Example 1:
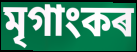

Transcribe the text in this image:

মৃগাংকৰ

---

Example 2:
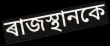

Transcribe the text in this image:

ৰাজস্থানকে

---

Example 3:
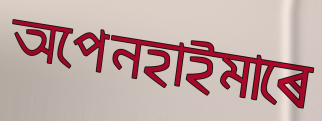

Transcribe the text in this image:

অপেনহাইমাৰে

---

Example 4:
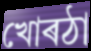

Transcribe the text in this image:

খোৰঠা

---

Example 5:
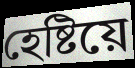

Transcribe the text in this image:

হেষ্টিয়ে